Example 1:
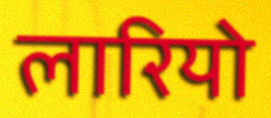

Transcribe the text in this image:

लारियो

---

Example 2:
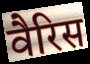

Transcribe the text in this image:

वैरिस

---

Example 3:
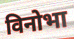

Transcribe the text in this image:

विनोभा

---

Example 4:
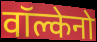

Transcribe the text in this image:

वॉल्केनो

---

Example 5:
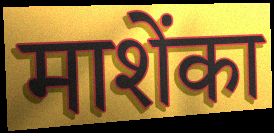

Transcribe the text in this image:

माशेंका